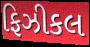
ફિઝીકલ